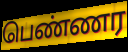
பெண்ணர